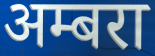
अम्बरा